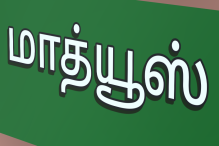
மாத்யூஸ்